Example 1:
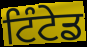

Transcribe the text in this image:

ਟਿੰਟੇਡ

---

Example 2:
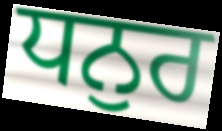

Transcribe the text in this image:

ਧਨੁਰ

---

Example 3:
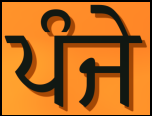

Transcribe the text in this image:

ਪੰਜੇ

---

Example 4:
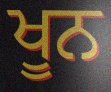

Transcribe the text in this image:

ਖੂਨ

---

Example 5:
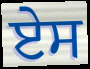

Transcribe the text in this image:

ਏਸ